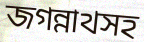
জগন্নাথসহ